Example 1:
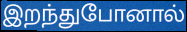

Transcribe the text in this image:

இறந்துபோனால்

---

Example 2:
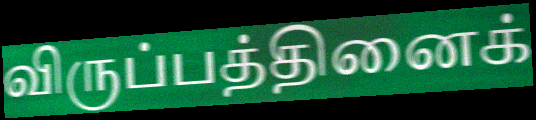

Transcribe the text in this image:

விருப்பத்தினைக்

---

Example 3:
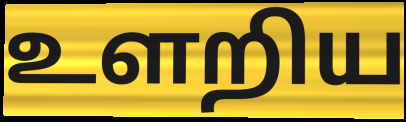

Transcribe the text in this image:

உளறிய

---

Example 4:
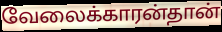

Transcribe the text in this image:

வேலைக்காரன்தான்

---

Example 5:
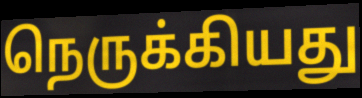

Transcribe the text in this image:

நெருக்கியது